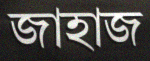
জাহাজ